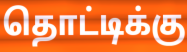
தொட்டிக்கு